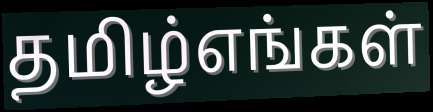
தமிழ்எங்கள்